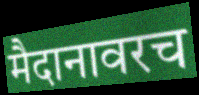
मैदानावरच